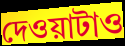
দেওয়াটাও